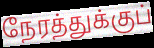
நேரத்துக்குப்